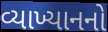
વ્યાખ્યાનનો